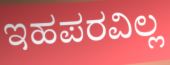
ಇಹಪರವಿಲ್ಲ